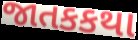
જાતકકથા